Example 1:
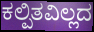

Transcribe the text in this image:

ಕಲ್ಪಿತವಿಲ್ಲದ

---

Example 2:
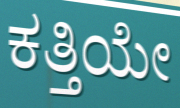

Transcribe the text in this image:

ಕತ್ತಿಯೇ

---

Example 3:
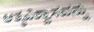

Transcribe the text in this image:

ಆತ್ಮವಿಶ್ವಾಸವನ್ನು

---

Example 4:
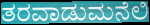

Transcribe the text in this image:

ತರವಾಡುಮನೆಲಿ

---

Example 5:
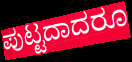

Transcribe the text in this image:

ಪುಟ್ಟದಾದರೂ